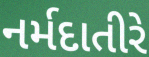
નર્મદાતીરે